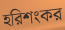
হরিশংকর